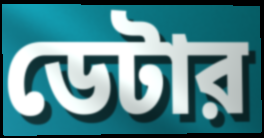
ডেটার